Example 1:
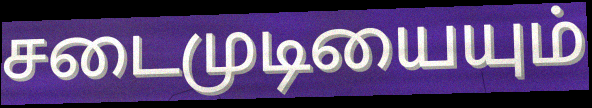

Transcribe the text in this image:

சடைமுடியையும்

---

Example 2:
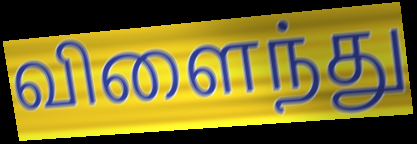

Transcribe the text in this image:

விளைந்து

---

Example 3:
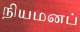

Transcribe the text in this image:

நியமனப்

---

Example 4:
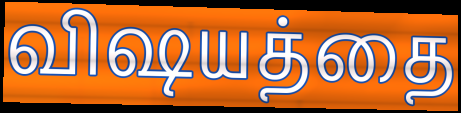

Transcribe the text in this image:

விஷயத்தை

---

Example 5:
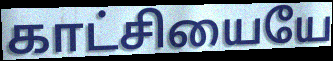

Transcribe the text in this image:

காட்சியையே